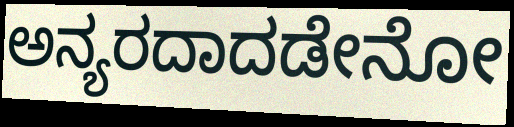
ಅನ್ಯರದಾದಡೇನೋ